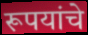
रूपयांचे